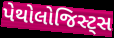
પેથોલોજિસ્ટ્સ